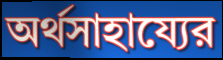
অর্থসাহায্যের